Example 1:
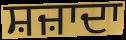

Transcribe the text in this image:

ਸ਼ਜ਼ਾਦਾ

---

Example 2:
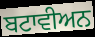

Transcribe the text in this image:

ਬਟਾਵੀਅਨ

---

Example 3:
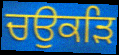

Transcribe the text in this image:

ਚਉਕੜਿ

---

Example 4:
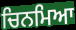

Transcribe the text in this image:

ਚਿਨਮਿਆ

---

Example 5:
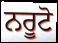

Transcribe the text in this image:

ਨਰੂਟੋ